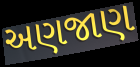
અણજાણ